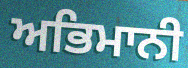
ਅਭਿਮਾਨੀ